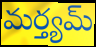
మర్త్యమ్